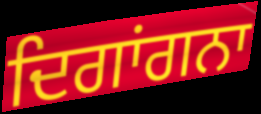
ਦਿਗਾਂਗਨਾ